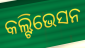
କଲ୍ଟିଭେସନ